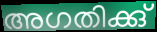
അഗതിക്കു്